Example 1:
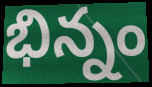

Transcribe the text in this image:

భిన్నం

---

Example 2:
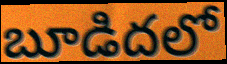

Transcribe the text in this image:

బూడిదలో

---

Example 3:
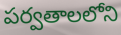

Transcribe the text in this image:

పర్వతాలలోని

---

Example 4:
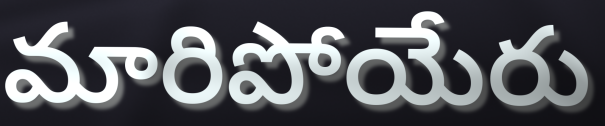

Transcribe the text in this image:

మారిపోయేరు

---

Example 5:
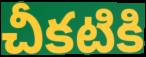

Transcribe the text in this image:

చీకటికి